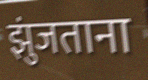
झुंजताना